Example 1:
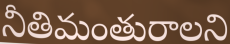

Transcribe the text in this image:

నీతిమంతురాలని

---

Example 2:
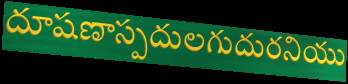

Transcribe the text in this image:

దూషణాస్పదులగుదురనియు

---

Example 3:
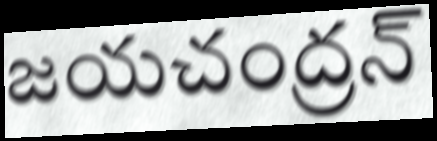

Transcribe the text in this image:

జయచంద్రన్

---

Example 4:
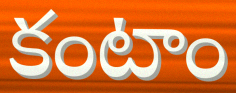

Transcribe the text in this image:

కంటాం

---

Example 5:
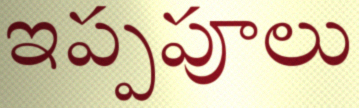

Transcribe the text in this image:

ఇప్పపూలు